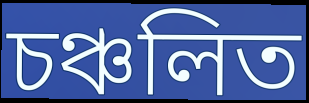
চঞ্চলিত